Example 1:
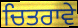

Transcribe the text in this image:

ਚਿਤਰਾਵੇ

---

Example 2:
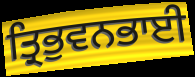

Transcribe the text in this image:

ਤ੍ਰਿਭੁਵਨਭਾਈ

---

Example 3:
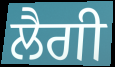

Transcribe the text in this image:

ਲੈਗੀ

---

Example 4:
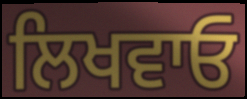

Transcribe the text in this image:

ਲਿਖਵਾਓ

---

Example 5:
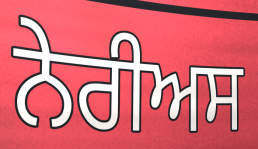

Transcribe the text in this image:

ਨੇਰੀਅਸ